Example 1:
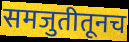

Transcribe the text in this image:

समजुतीतूनच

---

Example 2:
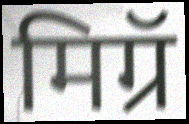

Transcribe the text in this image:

मिग्रॅ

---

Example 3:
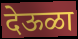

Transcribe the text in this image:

देऊळा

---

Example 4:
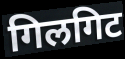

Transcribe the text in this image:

गिलगिट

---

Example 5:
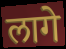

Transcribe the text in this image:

लागे